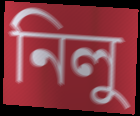
নিলু